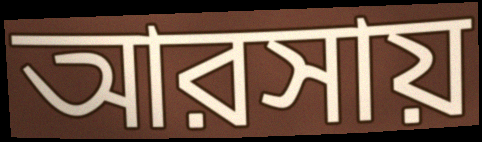
আরসায়